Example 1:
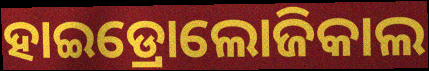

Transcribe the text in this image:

ହାଇଡ୍ରୋଲୋଜିକାଲ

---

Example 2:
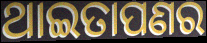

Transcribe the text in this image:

ଥାଇତାପଣର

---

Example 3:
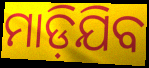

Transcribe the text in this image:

ମାଡ଼ିଯିବ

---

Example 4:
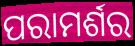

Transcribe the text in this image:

ପରାମର୍ଶର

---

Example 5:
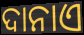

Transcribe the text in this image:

ଦାନାଏ